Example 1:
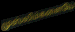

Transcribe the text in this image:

முஸ்லிம்களையே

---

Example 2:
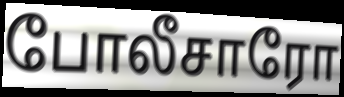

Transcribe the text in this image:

போலீசாரோ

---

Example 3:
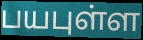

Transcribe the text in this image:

பயபுள்ள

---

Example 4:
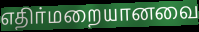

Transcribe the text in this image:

எதிர்மறையானவை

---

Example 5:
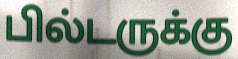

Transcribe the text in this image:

பில்டருக்கு